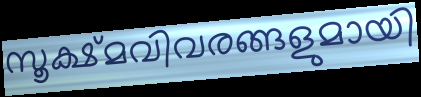
സൂക്ഷ്മവിവരങ്ങളുമായി